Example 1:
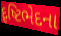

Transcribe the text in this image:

દૃષ્ટિભેદના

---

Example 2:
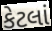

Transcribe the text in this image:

કેટલાં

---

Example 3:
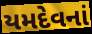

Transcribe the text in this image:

યમદેવનાં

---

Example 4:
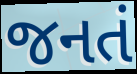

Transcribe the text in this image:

જનતં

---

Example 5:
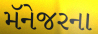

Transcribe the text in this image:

મૅનેજરના